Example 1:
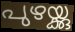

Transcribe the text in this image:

പുഴയ്ക്കു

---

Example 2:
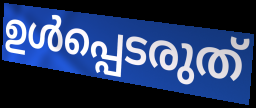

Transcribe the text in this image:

ഉൾപ്പെടരുത്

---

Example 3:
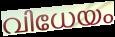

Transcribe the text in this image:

വിധേയം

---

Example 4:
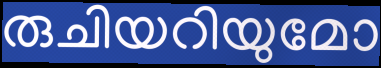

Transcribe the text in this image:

രുചിയറിയുമോ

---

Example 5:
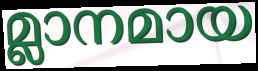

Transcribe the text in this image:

മ്ലാനമായ